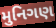
મુનિગણ